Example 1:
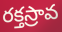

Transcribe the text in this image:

రక్తస్రావ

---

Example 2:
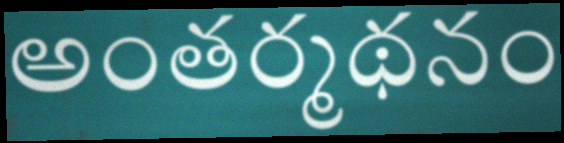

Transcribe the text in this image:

అంతర్మథనం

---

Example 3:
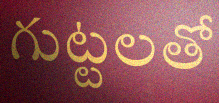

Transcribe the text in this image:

గుట్టలతో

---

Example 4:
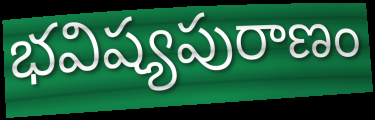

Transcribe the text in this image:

భవిష్యపురాణం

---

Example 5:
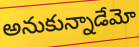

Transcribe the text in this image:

అనుకున్నాడేమో